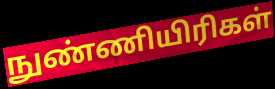
நுண்ணியிரிகள்